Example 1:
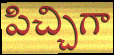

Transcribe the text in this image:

పిచ్చిగా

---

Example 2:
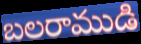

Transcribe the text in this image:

బలరాముడి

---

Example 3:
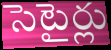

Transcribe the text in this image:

సెటైర్లు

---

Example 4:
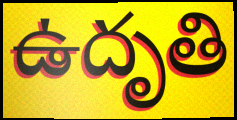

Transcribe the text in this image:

ఉదృతి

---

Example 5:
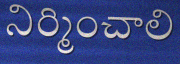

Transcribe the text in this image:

నిర్మించాలి